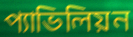
প্যাভিলিয়ন